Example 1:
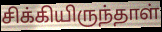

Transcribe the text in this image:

சிக்கியிருந்தாள்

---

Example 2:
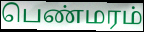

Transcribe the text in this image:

பெண்மரம்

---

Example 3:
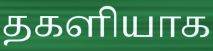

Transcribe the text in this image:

தகளியாக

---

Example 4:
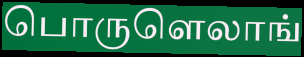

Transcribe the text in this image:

பொருளெலாங்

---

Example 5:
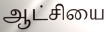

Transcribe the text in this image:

ஆட்சியை